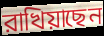
রাখিয়াছেন